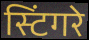
स्टिंगरे